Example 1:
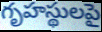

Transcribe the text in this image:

గృహస్థులపై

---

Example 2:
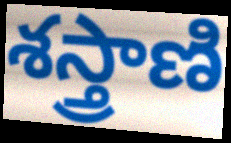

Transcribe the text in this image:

శస్త్రాణి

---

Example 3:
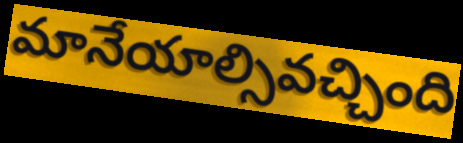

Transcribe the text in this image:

మానేయాల్సివచ్చింది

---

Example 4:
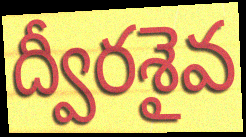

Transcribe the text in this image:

ద్వీరశైవ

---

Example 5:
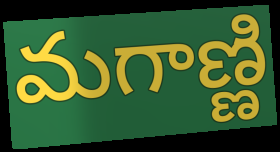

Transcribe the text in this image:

మగాణ్ణి